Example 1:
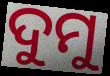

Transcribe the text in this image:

ଦୁମୁ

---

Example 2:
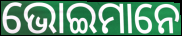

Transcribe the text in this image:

ଭୋଇମାନେ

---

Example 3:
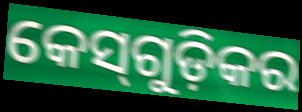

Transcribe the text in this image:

କେସ୍‌ଗୁଡ଼ିକର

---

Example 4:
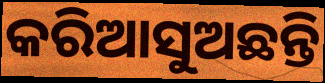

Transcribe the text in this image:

କରିଆସୁଅଛନ୍ତି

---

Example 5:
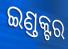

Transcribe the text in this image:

ଇଣ୍ଡକ୍ଟର